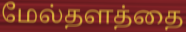
மேல்தளத்தை